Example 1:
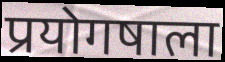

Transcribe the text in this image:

प्रयोगषाला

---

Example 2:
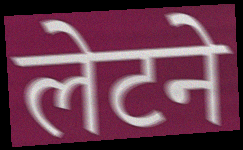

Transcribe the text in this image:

लेटने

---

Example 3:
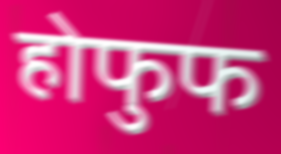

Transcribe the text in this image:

होफुफ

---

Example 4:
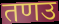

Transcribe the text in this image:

तणउ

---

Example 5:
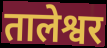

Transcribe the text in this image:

तालेश्वर